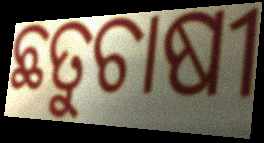
ଛତୁଚାଷୀ